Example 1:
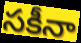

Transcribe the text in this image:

సకీనా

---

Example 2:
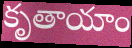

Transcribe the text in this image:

కృతాయాం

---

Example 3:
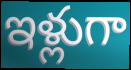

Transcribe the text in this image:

ఇళ్లుగా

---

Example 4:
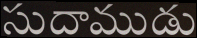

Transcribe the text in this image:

సుదాముడు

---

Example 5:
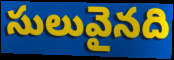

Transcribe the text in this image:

సులువైనది